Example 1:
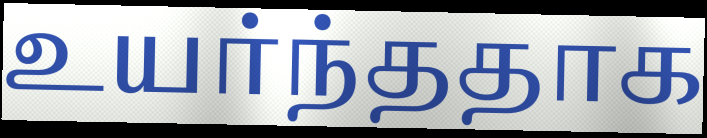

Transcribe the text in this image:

உயர்ந்ததாக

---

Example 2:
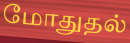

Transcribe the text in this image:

மோதுதல்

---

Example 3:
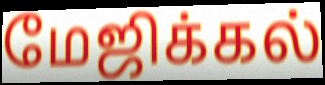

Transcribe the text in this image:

மேஜிக்கல்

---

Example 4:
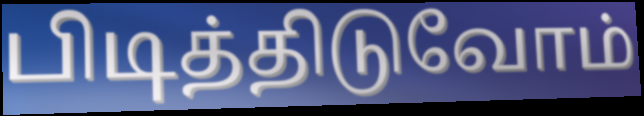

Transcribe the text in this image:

பிடித்திடுவோம்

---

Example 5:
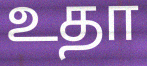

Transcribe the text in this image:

உதா